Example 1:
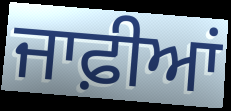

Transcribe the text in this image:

ਜਾਫ਼ੀਆਂ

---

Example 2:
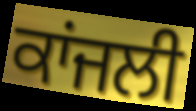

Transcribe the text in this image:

ਕਾਂਜਲੀ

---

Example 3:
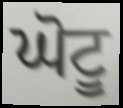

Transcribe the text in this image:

ਘੋਟੂ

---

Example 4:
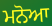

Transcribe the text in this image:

ਮਨੋਆ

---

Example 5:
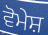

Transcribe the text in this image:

ਵੋਮੇਸ਼